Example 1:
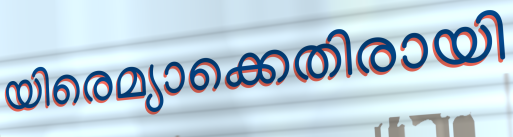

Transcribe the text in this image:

യിരെമ്യാക്കെതിരായി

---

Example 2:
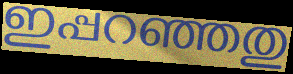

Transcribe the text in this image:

ഇപ്പറഞ്ഞതു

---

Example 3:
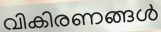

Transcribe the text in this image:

വികിരണങ്ങൾ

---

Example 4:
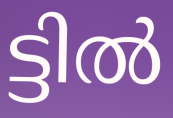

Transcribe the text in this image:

ട്ടിൽ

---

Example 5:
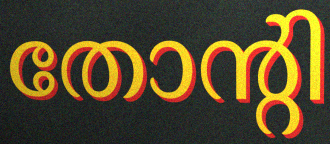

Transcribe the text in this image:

തോന്റി